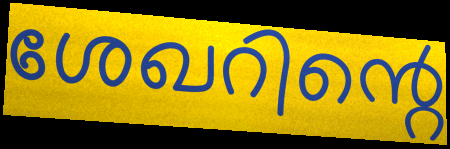
ശേഖറിന്റെ